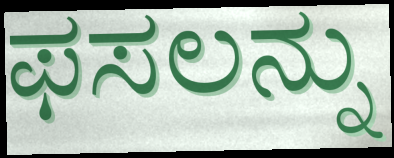
ಫಸಲನ್ನು